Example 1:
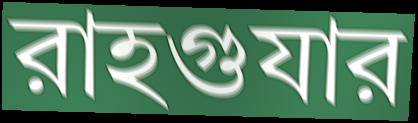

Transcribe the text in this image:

রাহগুযার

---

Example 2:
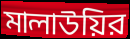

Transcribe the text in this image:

মালাউয়ির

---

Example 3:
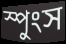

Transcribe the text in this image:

স্পুংস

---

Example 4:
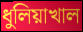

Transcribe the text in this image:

ধুলিয়াখাল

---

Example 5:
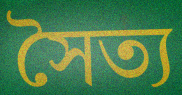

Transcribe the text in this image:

সৈত্য